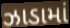
ઝાડામાં